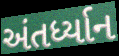
અંતર્ધ્યાન